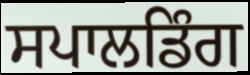
ਸਪਾਲਡਿੰਗ